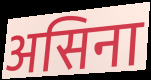
असिना